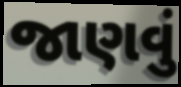
જાણવું